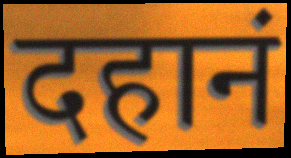
दहानं